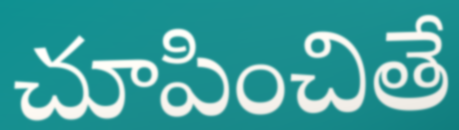
చూపించితే